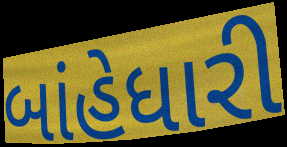
બાંહેધારી